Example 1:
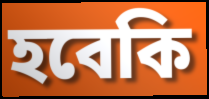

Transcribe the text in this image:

হবেকি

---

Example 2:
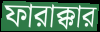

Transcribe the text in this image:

ফারাক্কার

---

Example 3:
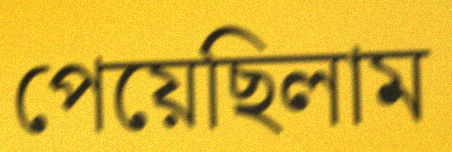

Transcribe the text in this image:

পেয়েছিলাম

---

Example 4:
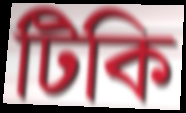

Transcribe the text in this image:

টিকি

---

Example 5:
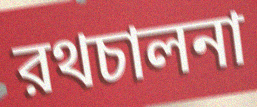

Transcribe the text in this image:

রথচালনা